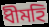
ধীমহি